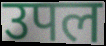
उपल